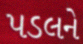
પડલને